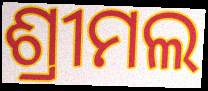
ଶ୍ରୀମଲ